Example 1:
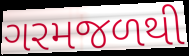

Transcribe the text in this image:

ગરમજળથી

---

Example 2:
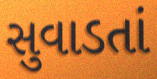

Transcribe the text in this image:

સુવાડતાં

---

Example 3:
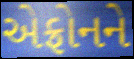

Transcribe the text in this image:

એફ્રોનને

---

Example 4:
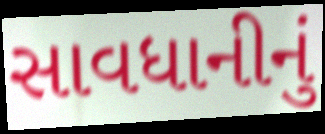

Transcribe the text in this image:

સાવધાનીનું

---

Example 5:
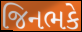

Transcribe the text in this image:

જિનભકે